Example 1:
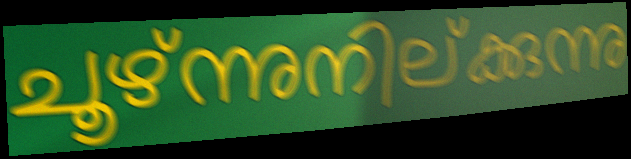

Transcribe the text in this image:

ചൂഴ്ന്നുനില്ക്കുന്നു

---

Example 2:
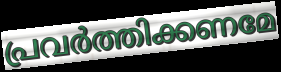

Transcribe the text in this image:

പ്രവർത്തിക്കണമേ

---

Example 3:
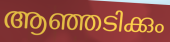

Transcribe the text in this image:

ആഞ്ഞടിക്കും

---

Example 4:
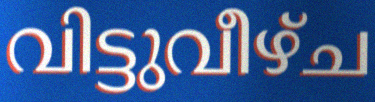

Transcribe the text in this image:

വിട്ടുവീഴ്ച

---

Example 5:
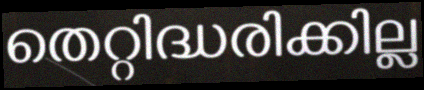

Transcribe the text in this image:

തെറ്റിദ്ധരിക്കില്ല